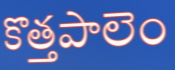
కొత్తపాలెం